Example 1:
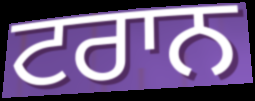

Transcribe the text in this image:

ਟਰਾਨ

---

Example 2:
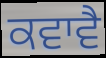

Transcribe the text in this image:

ਕਵਾਵੈ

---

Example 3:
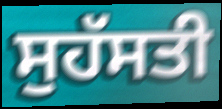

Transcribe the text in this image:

ਸੁਹੱਸਤੀ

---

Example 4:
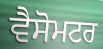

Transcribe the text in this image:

ਵੈਸੋਮਟਰ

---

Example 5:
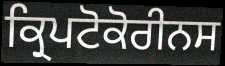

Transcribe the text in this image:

ਕ੍ਰਿਪਟੋਕੋਰੀਨਸ